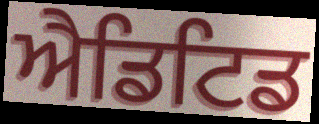
ਐਡਿਟਿਡ